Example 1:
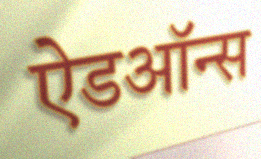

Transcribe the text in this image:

ऐडऑन्स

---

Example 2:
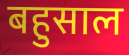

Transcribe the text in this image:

बहुसाल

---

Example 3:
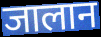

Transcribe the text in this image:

जालान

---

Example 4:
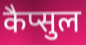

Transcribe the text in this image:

कैप्सुल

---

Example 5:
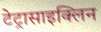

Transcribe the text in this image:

टेट्रासाइक्लिन